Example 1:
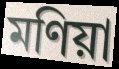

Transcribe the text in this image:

মণিয়া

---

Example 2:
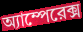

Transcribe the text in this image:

অ্যাম্পেরেক্স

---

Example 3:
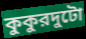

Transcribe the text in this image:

কুকুরদুটো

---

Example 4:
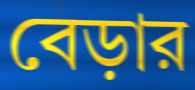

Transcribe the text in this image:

বেড়ার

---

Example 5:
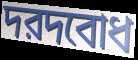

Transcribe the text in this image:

দরদবোধ